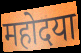
महोदया